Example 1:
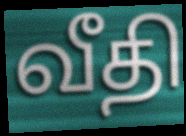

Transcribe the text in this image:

வீதி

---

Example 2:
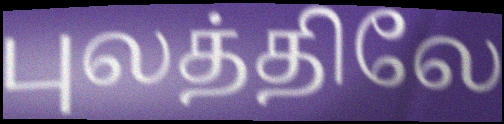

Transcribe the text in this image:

புலத்திலே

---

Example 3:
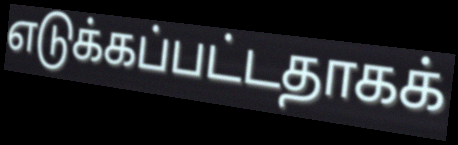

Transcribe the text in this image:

எடுக்கப்பட்டதாகக்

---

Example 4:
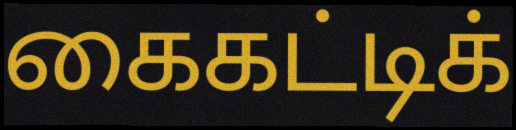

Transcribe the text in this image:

கைகட்டிக்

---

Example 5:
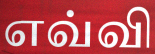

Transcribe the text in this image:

எவ்வி